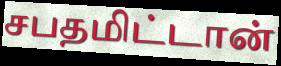
சபதமிட்டான்